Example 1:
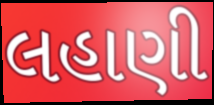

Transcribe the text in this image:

લહાણી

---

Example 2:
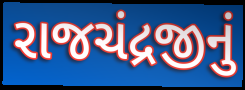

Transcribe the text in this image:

રાજચંદ્રજીનું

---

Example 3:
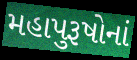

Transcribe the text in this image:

મહાપુરૂષોનાં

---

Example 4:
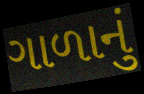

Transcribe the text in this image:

ગાળાનું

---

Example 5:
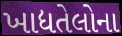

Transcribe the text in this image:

ખાદ્યતેલોના